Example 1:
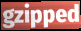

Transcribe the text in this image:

gzipped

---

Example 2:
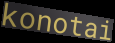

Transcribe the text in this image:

konotai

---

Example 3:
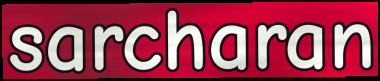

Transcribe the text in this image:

sarcharan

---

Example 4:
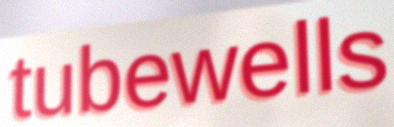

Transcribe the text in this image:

tubewells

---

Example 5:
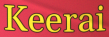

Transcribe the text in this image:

Keerai